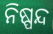
ନିଷ୍ପନ୍ଦ